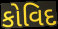
કોવિદ